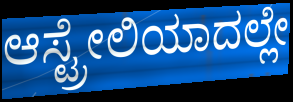
ಆಸ್ಟ್ರೇಲಿಯಾದಲ್ಲೇ